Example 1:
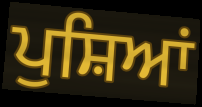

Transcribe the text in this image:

ਪੁਸ਼ਿਆਂ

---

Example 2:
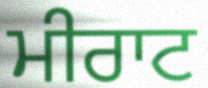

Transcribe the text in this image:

ਮੀਰਾਟ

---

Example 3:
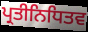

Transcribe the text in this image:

ਪ੍ਰਤੀਨਿਧਿਤਵ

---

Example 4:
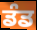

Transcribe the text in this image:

ਡੰਡ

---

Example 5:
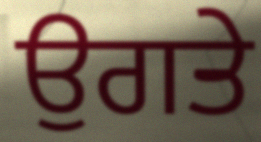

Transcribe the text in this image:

ਉਗਤੇ